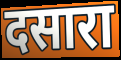
दसारा